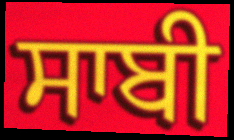
ਸਾਬੀ